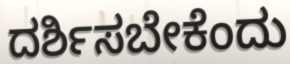
ದರ್ಶಿಸಬೇಕೆಂದು